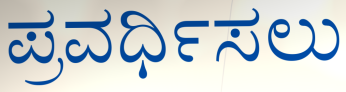
ಪ್ರವರ್ಧಿಸಲು